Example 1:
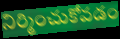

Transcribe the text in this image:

నిర్మించుకోవడం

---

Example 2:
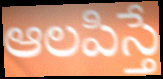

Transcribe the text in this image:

ఆలపిస్తే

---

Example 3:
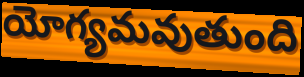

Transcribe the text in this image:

యోగ్యమవుతుంది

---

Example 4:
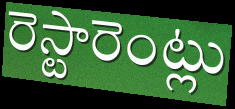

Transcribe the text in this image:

రెస్టారెంట్లు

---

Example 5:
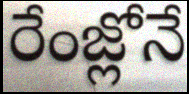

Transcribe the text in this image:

రేంజ్లోనే